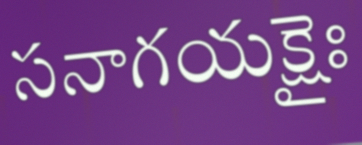
సనాగయక్షైః